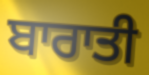
ਬਾਰਾਤੀ